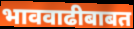
भाववाढीबाबत